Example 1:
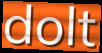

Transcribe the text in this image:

dolt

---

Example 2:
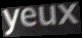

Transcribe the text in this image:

yeux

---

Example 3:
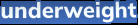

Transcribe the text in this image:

underweight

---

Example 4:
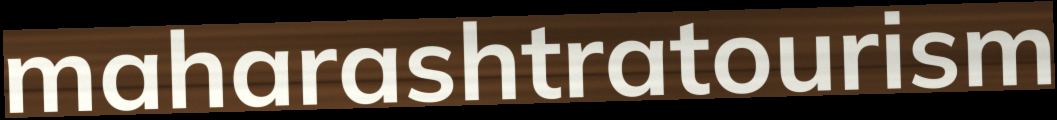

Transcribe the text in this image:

maharashtratourism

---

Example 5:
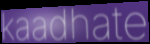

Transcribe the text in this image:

kaadhate